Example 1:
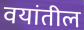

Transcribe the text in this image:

वयांतील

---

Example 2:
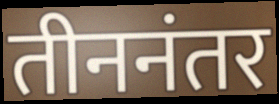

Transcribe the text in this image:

तीननंतर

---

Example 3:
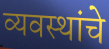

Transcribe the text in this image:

व्यवस्थांचे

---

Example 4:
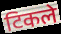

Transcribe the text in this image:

टिकले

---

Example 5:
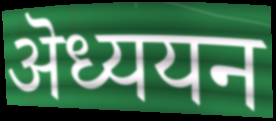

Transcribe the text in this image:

ऄध्ययन